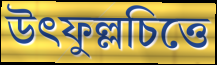
উৎফুল্লচিত্তে